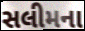
સલીમના